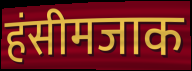
हंसीमजाक